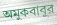
অমুকবাবুর